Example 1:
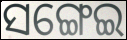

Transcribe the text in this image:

ସଙ୍ଗେଇ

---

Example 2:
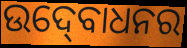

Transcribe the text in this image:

ଉଦ୍‍ବୋଧନର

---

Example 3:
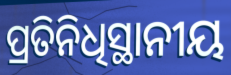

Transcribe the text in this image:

ପ୍ରତିନିଧିସ୍ଥାନୀୟ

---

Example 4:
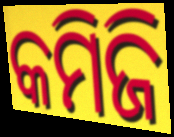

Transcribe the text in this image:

କମିଜି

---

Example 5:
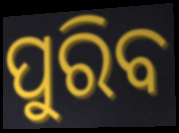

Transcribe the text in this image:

ପୁରିବ